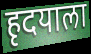
हृदयाला